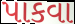
પાકવા